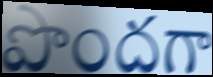
పొందగా